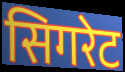
सिगरेट